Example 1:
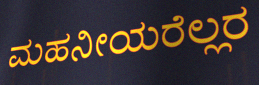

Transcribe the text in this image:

ಮಹನೀಯರೆಲ್ಲರ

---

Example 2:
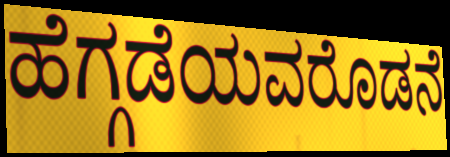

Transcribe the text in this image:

ಹೆಗ್ಗಡೆಯವರೊಡನೆ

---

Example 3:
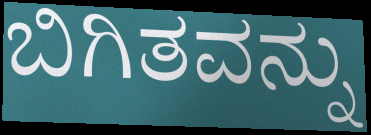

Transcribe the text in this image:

ಬಿಗಿತವನ್ನು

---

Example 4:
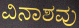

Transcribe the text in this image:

ವಿನಾಶವು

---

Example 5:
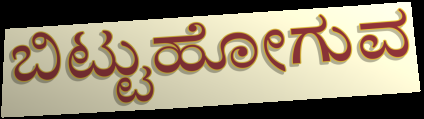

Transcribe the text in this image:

ಬಿಟ್ಟುಹೋಗುವ